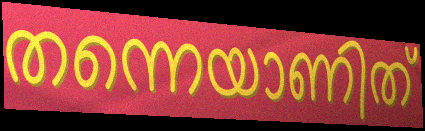
തന്നെയാണിത്